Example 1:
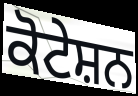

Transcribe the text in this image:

ਕੋਟੇਸ਼ਨ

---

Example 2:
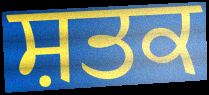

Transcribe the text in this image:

ਸ਼ਤਕ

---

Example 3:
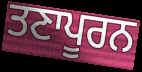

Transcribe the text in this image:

ਤਣਾਪੂਰਨ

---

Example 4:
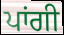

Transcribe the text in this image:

ਪਾਂਗੀ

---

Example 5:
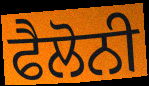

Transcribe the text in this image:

ਫੈਲੋਨੀ